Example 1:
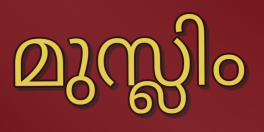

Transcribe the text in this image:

മുസ്ലിം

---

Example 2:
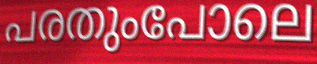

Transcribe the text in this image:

പരതുംപോലെ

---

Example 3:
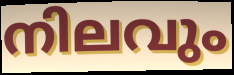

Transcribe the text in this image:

നിലവും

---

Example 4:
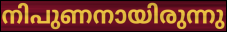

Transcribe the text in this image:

നിപുണനായിരുന്നു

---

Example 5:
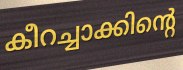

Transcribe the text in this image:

കീറച്ചാക്കിന്റെ